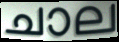
ചാല